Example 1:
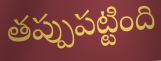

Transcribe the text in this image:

తప్పుపట్టింది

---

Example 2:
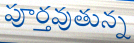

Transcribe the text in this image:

పూర్తవుతున్న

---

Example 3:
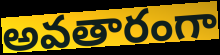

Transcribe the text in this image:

అవతారంగా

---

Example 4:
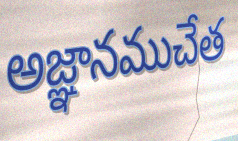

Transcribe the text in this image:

అజ్ఞానముచేత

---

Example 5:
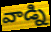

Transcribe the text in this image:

వాడ్ని